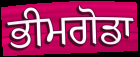
ਭੀਮਗੋਡਾ